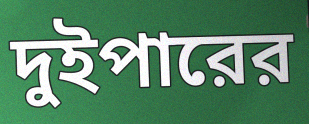
দুইপারের